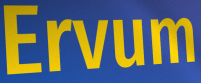
Ervum